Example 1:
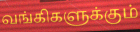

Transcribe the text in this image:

வங்கிகளுக்கும்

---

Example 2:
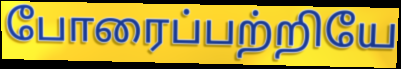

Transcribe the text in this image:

போரைப்பற்றியே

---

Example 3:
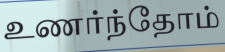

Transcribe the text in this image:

உணர்ந்தோம்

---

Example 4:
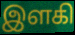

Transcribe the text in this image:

இளகி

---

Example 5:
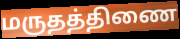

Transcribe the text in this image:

மருதத்திணை